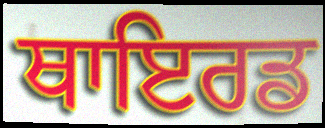
ਥਾਇਰਡ